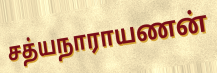
சத்யநாராயணன்